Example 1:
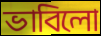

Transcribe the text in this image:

ভাবিলো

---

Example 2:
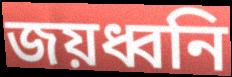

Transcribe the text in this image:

জয়ধ্বনি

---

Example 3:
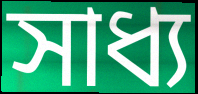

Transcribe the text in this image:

সাধ্য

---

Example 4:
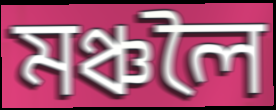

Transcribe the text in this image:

মঞ্চলৈ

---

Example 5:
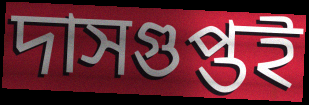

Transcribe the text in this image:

দাসগুপ্তই